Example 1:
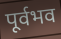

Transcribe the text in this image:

पूर्वभव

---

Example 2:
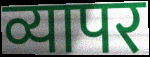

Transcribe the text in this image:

व्यापर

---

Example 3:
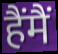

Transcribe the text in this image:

हैंमैं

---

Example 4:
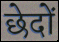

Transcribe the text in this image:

छेदों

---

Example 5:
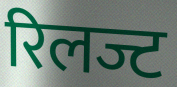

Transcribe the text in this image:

रिलज्ट